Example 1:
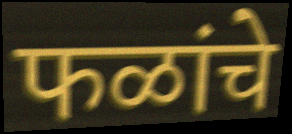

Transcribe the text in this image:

फळांचे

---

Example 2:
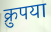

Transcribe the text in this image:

क्रुपया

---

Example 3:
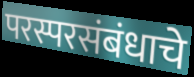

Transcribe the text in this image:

परस्परसंबंधाचे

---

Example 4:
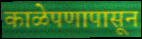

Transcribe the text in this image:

काळेपणापासून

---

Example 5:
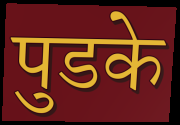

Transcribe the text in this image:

पुडके